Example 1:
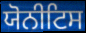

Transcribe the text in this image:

ਯੋਨੀਟਿਸ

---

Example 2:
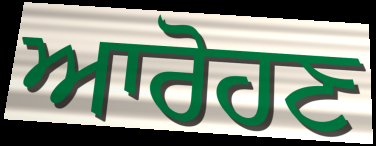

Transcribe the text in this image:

ਆਰੋਹਣ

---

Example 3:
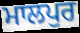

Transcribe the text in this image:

ਮਾਲਪੁਰ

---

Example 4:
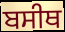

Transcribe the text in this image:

ਬਸੀਥ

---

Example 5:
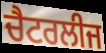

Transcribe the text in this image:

ਚੈਟਰਲੀਜ